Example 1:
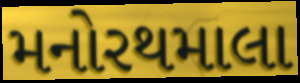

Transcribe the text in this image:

મનોરથમાલા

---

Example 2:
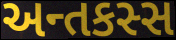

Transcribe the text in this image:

અન્તકસ્સ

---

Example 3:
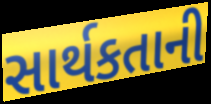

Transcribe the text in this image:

સાર્થકતાની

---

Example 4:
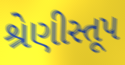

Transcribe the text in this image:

શ્રેણીસ્તૂપ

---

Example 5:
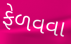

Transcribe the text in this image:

ફેળવવા